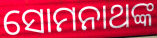
ସୋମନାଥଙ୍କ